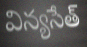
విన్యసేత్